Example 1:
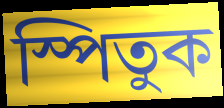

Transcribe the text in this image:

স্পিতুক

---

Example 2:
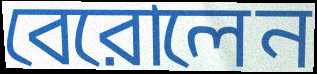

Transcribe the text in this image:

বেরোলেন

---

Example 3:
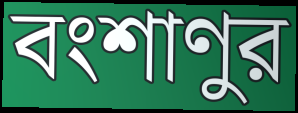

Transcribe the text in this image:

বংশাণুর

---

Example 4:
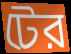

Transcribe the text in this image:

টের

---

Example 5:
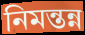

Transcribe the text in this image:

নিমন্তন্ন